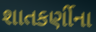
શાતકર્ણીના